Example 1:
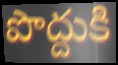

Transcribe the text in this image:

పొద్దుకి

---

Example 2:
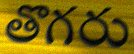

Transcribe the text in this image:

తొగరు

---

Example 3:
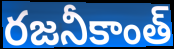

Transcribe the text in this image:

రజనీకాంత్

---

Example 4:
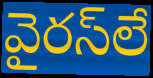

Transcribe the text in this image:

వైరస్‌లే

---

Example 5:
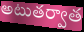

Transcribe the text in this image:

అటుతర్వాత